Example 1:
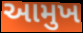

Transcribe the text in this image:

આમુખ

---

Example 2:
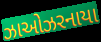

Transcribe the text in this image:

ઝાઓઝરનાયા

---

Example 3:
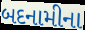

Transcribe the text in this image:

બદનામીના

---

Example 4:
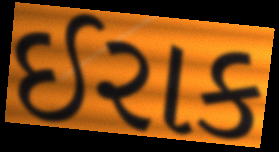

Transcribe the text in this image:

ઈરાક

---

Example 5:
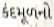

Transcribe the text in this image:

કંદમૂળનો